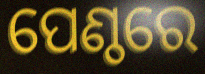
ପେଣ୍ଠରେ